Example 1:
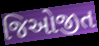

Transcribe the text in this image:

જિઓજીત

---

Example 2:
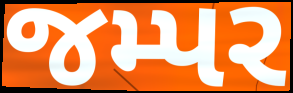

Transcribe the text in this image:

જમ્પર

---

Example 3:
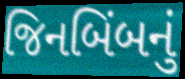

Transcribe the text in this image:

જિનબિંબનું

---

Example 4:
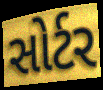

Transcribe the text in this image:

સોર્ટર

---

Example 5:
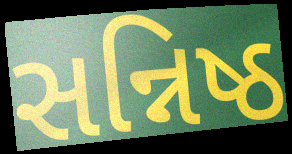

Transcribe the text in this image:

સન્નિષ્ઠ